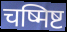
चष्मिष्ट